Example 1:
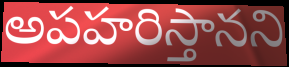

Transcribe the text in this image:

అపహరిస్తానని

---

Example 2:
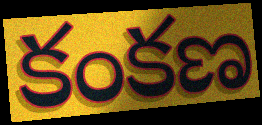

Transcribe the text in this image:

కంకణ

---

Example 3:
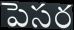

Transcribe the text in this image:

పెసర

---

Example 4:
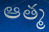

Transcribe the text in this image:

ఆత్మ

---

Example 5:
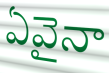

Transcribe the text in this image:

ఏవైనా